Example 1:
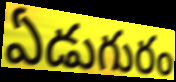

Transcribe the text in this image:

ఏడుగురం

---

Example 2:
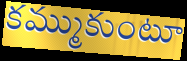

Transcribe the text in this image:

కమ్ముకుంటూ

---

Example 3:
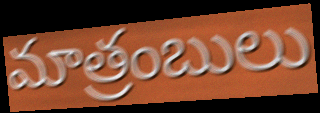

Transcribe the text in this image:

మాత్రంబులు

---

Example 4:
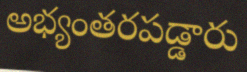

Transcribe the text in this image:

అభ్యంతరపడ్డారు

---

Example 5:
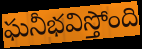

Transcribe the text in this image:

ఘనీభవిస్తోంది